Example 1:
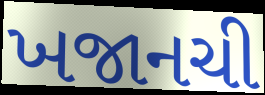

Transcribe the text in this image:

ખજાનચી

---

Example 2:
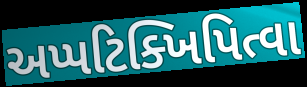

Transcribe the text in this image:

અપ્પટિક્ખિપિત્વા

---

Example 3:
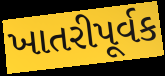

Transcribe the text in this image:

ખાતરીપૂર્વક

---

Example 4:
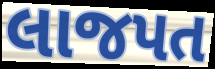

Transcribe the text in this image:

લાજપત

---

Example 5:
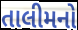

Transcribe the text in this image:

તાલીમનો